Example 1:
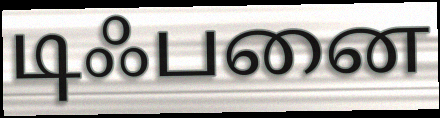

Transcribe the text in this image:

டிஃபனை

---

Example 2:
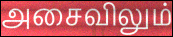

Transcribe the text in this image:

அசைவிலும்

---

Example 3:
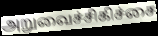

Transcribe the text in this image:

அறுவைச்சிகிச்சை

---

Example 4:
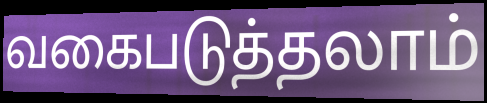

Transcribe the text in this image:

வகைபடுத்தலாம்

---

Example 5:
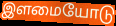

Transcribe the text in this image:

இளமையோடு